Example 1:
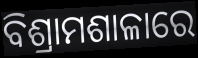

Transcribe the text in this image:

ବିଶ୍ରାମଶାଳାରେ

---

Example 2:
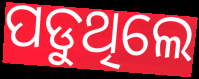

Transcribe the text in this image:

ପଡୁଥିଲେ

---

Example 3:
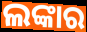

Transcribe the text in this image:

ଲଙ୍କାର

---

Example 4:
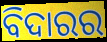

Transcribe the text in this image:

ବିଦାରର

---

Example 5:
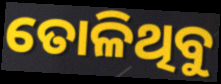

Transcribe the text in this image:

ତୋଳିଥିବୁ